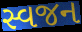
સ્વજન